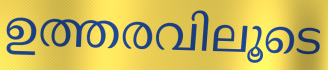
ഉത്തരവിലൂടെ